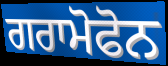
ਗਰਾਮੋਫੋਨ